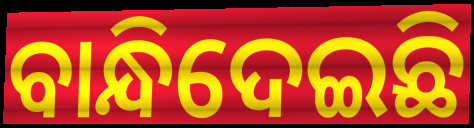
ବାନ୍ଧିଦେଇଛି